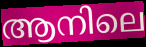
ആനിലെ